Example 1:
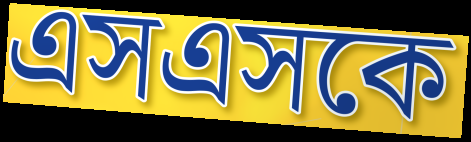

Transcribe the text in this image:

এসএসকে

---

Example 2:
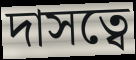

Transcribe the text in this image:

দাসত্বে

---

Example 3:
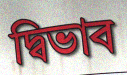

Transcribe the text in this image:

দ্বিভাব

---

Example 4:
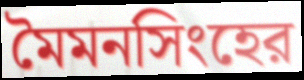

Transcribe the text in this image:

মৈমনসিংহের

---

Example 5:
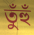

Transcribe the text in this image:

তুঁহুঁ